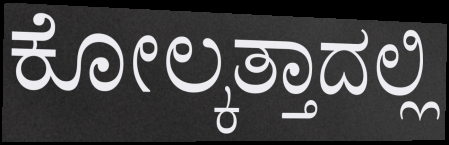
ಕೋಲ್ಕತ್ತಾದಲ್ಲಿ